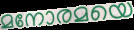
മനോരമയെ